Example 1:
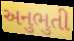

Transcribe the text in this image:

અનુભુતી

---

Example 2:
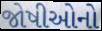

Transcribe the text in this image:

જોષીઓનો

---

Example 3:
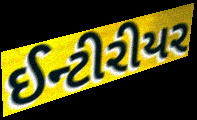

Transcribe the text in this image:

ઈન્ટીરીયર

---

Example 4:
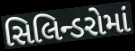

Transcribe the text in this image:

સિલિન્ડરોમાં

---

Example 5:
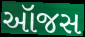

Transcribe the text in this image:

ઑજસ